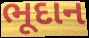
ભૂદાન